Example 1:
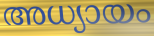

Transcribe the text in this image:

അധ്യായം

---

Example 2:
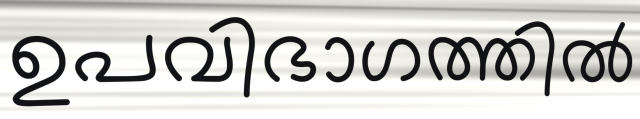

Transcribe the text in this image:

ഉപവിഭാഗത്തിൽ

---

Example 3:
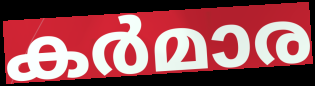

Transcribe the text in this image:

കർമാര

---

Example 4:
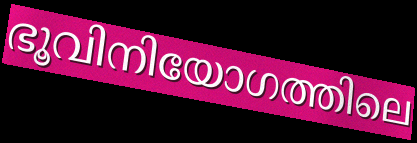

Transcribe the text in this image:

ഭൂവിനിയോഗത്തിലെ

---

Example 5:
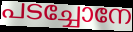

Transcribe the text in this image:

പടച്ചോനേ